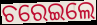
ଚରେଇଲେ